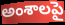
అంశాలపై